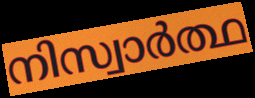
നിസ്വാർത്ഥ